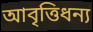
আবৃত্তিধন্য